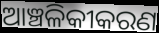
ଆଞ୍ଚଳିକୀକରଣ